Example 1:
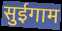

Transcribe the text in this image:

सुईगाम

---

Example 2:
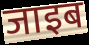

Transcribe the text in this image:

जाइब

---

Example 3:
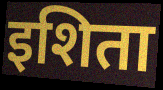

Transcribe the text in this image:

इशिता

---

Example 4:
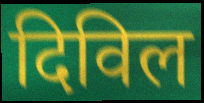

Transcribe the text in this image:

दिविल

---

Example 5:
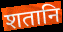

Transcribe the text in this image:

शतानि